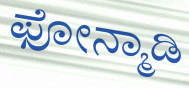
ಫೋನ್ಮಾಡಿ